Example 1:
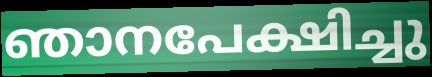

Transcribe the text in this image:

ഞാനപേക്ഷിച്ചു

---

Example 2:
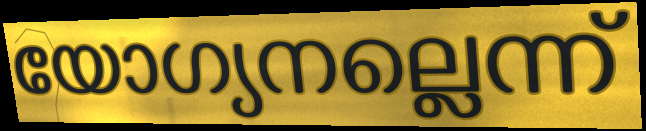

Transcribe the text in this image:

യോഗ്യനല്ലെന്ന്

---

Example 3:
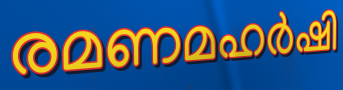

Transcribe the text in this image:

രമണമഹർഷി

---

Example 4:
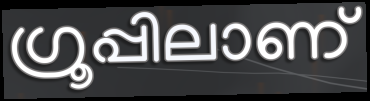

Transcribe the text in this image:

ഗ്രൂപ്പിലാണ്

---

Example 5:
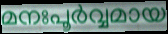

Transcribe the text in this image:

മനഃപൂർവ്വമായ